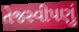
તેજસ્વીપણું